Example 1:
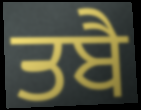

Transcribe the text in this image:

ਤਬੈ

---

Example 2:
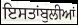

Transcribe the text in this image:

ਇਸਤਾਂਬੁਲੀਆਂ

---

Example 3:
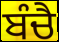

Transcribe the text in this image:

ਬੰਚੈ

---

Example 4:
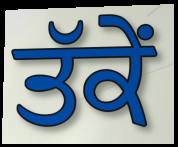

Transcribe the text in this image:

ਤੱਕੇਂ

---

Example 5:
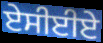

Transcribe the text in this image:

ਏਸੀਈਏ